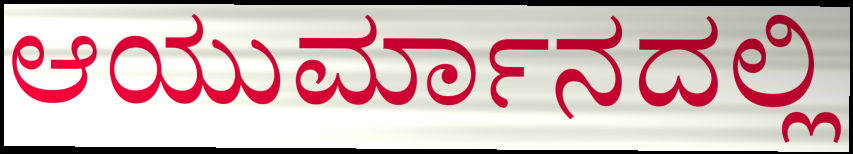
ಆಯುರ್ಮಾನದಲ್ಲಿ